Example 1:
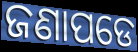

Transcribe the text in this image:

ଜଣାପଡେ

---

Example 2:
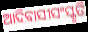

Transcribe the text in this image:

ଆଦିବାସୀସଂସ୍କୃତି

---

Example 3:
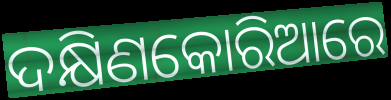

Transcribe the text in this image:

ଦକ୍ଷିଣକୋରିଆରେ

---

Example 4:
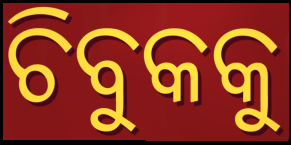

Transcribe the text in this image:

ଚିବୁକକୁ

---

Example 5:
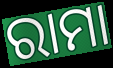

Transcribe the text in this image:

ରାମା